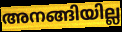
അനങ്ങിയില്ല